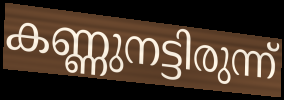
കണ്ണുനട്ടിരുന്ന്